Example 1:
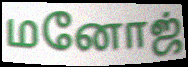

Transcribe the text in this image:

மனோஜ்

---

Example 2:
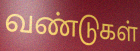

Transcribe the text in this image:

வண்டுகள்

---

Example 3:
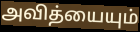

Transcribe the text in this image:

அவித்யையும்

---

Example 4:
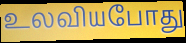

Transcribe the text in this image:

உலவியபோது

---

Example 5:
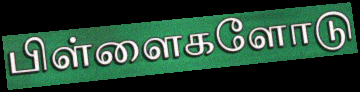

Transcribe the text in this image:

பிள்ளைகளோடு